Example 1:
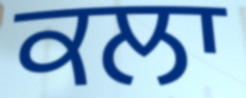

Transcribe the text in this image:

ਕਲਾ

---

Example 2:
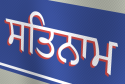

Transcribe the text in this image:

ਸਤਿਨਾਮ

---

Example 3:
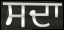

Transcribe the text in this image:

ਸਦਾ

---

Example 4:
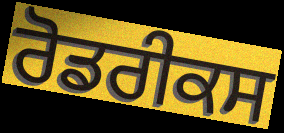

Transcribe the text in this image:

ਰੋਡਰੀਕਸ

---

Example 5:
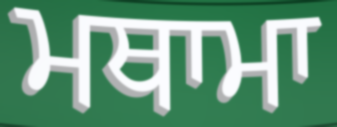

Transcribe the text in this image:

ਮਥਾਮਾ